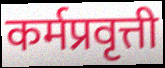
कर्मप्रवृत्ती